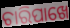
ଚାରିପାଖେ